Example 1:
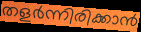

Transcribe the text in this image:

തളർന്നിരിക്കാൻ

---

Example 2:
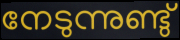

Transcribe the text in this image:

നേടുന്നുണ്ടു്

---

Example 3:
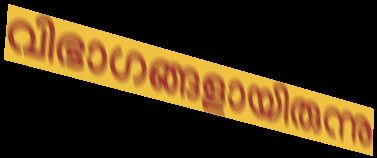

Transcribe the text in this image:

വിഭാഗങ്ങളായിരുന്നു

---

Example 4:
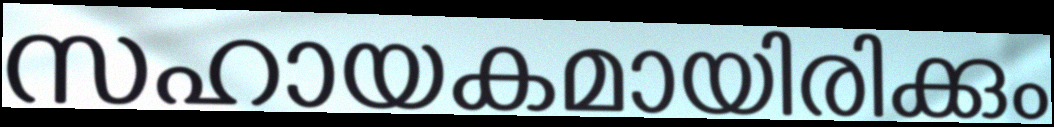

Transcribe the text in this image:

സഹായകമായിരിക്കും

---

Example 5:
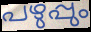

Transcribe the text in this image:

പഴുപ്പും